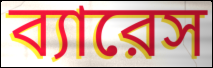
ব্যারেস